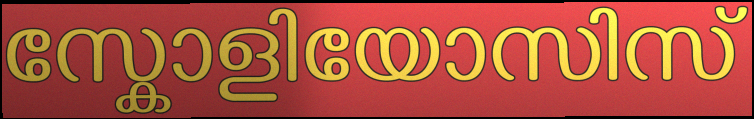
സ്കോളിയോസിസ്